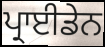
ਪ੍ਰਾਈਡੇਨ